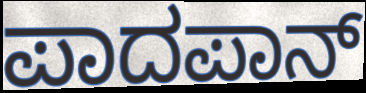
ಪಾದಪಾನ್